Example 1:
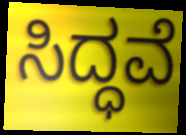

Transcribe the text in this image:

ಸಿದ್ಧವೆ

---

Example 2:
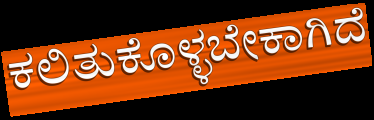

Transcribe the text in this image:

ಕಲಿತುಕೊಳ್ಳಬೇಕಾಗಿದೆ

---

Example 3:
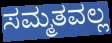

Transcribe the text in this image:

ಸಮ್ಮತವಲ್ಲ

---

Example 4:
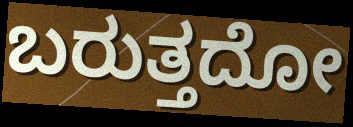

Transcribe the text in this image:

ಬರುತ್ತದೋ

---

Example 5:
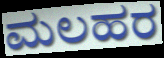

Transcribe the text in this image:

ಮಲಹರ